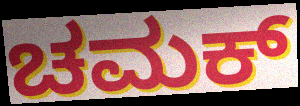
ಚಮಕ್